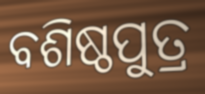
ବଶିଷ୍ଠପୁତ୍ର